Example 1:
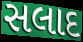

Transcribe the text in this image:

સલાદ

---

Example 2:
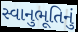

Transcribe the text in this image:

સ્વાનુભૂતિનું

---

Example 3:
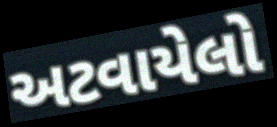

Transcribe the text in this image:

અટવાયેલો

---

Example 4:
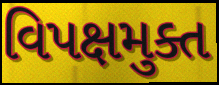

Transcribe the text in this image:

વિપક્ષમુક્ત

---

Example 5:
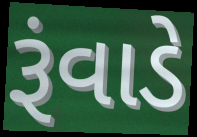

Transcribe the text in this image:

રૂંવાડે